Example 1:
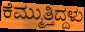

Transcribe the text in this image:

ಕೆಮ್ಮುತ್ತಿದ್ದಳು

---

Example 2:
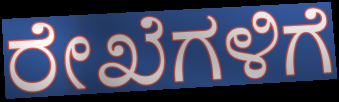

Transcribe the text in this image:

ರೇಖೆಗಳಿಗೆ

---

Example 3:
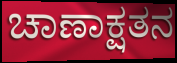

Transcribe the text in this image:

ಚಾಣಾಕ್ಷತನ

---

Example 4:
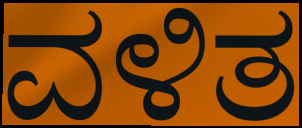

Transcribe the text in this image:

ವಳಿತ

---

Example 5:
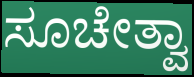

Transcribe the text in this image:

ಸೂಚೇತ್ವಾ